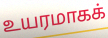
உயரமாகக்